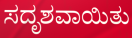
ಸದೃಶವಾಯಿತು